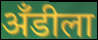
अँडीला